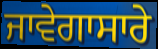
ਜਾਵੇਗਾਸਾਰੇ